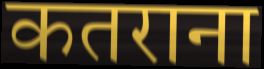
कतराना